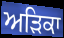
ਅੜਿਕਾ